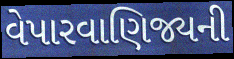
વેપારવાણિજ્યની